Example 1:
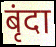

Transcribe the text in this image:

बृंदा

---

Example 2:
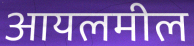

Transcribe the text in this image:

आयलमील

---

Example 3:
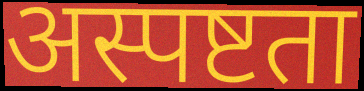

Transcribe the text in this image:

अस्पष्टता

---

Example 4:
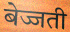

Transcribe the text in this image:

बेज्जती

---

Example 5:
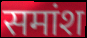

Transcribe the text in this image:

समांश